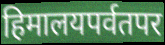
हिमालयपर्वतपर